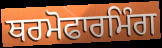
ਥਰਮੋਫਾਰਮਿੰਗ